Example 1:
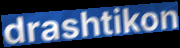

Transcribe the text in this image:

drashtikon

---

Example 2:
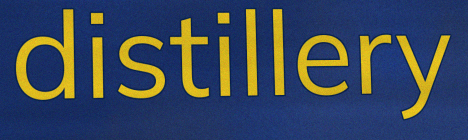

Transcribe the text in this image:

distillery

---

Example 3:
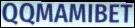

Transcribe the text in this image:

QQMAMIBET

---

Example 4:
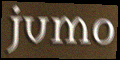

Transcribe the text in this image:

jumo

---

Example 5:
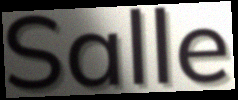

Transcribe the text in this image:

Salle